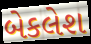
બેકલેશ